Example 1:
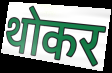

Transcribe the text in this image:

थोकर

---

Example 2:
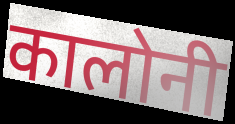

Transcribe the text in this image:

कालोनी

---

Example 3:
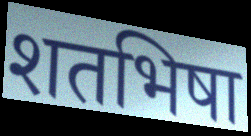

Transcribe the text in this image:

शतभिषा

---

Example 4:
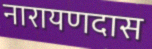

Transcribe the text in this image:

नारायणदास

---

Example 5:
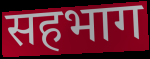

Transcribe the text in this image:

सहभाग